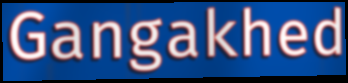
Gangakhed